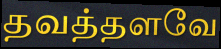
தவத்தளவே